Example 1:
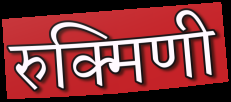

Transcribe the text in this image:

रुक्मिणी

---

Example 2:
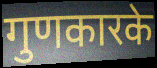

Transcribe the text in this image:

गुणकारके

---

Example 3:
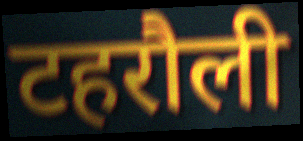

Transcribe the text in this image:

टहरौली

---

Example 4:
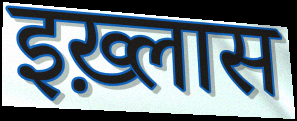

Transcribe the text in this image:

इख़्लास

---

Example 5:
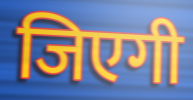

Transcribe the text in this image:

जिएगी